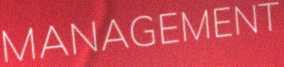
MANAGEMENT